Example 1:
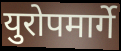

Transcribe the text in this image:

युरोपमार्गे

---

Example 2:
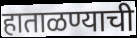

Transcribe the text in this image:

हाताळण्याची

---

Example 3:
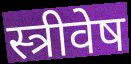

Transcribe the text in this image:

स्त्रीवेष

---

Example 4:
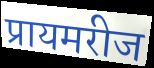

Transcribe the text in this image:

प्रायमरीज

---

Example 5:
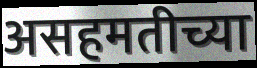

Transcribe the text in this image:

असहमतीच्या